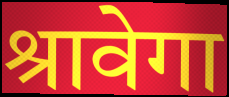
श्रावेगा